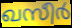
ഖസീർ